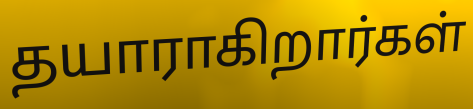
தயாராகிறார்கள்